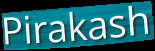
Pirakash